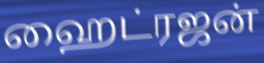
ஹைட்ரஜன்